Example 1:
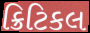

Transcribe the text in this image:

ક્રિટિકલ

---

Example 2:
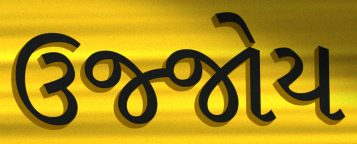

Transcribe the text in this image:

ઉજ્જોય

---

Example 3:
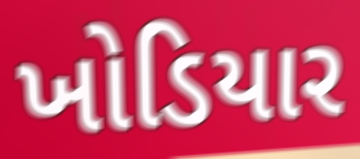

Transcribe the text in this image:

ખોડિયાર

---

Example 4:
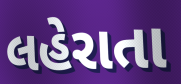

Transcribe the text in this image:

લહેરાતા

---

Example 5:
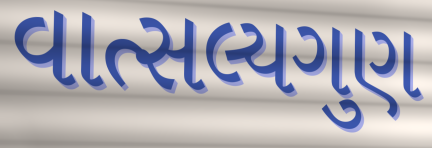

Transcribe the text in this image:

વાત્સલ્યગુણ